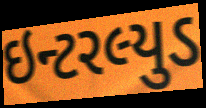
ઇન્ટરલ્યુડ